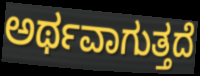
ಅರ್ಥವಾಗುತ್ತದೆ